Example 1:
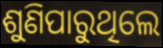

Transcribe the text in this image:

ଶୁଣିପାରୁଥିଲେ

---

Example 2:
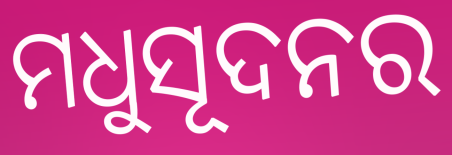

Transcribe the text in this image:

ମଧୁସୂଦନର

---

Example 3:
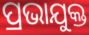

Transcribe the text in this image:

ପ୍ରଭାଯୁକ୍ତ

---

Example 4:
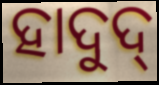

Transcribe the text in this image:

ହାଦୁଦ୍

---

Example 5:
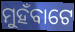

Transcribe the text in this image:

ମୁହଁବାଟେ